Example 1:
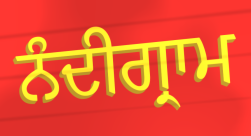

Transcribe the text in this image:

ਨੰਦੀਗ੍ਰਾਮ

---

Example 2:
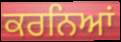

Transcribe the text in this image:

ਕਰਨਿਆਂ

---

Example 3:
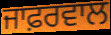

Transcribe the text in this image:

ਜਾਫ਼ਰਵਾਲ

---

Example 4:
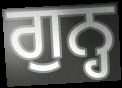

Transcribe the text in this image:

ਗੁਨ੍ਹ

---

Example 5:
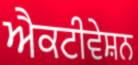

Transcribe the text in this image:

ਐਕਟੀਵੇਸ਼ਨ